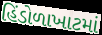
હિંડોળાખાટમાં